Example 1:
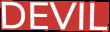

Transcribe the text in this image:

DEVIL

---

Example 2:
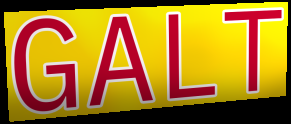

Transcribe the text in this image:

GALT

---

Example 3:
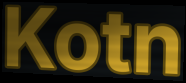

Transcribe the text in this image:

Kotn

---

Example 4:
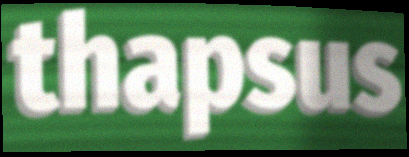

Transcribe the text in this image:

thapsus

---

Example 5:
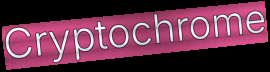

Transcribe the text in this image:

Cryptochrome